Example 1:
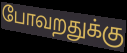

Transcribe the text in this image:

போவறதுக்கு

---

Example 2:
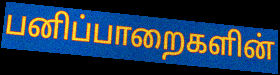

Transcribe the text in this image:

பனிப்பாறைகளின்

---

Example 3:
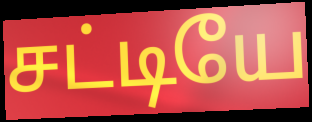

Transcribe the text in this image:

சட்டியே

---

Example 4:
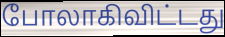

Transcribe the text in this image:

போலாகிவிட்டது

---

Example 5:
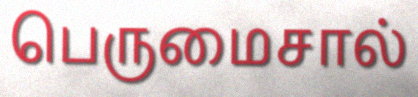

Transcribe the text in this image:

பெருமைசால்